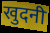
खुदनी